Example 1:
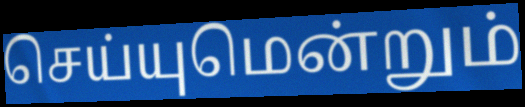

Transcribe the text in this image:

செய்யுமென்றும்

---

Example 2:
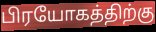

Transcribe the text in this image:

பிரயோகத்திற்கு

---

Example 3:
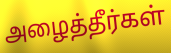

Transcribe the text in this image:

அழைத்தீர்கள்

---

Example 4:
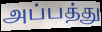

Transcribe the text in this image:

அப்பத்து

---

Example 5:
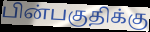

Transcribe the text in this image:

பின்பகுதிக்கு